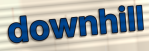
downhill